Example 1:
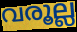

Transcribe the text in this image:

വരൂല്ല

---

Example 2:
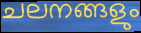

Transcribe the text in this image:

ചലനങ്ങളും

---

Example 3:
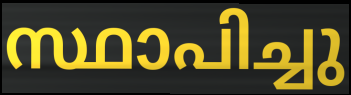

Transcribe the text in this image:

സ്ഥാപിച്ചു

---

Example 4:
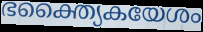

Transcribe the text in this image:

ഭക്ത്യൈകയേശം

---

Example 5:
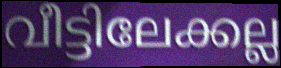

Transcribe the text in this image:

വീട്ടിലേക്കല്ല